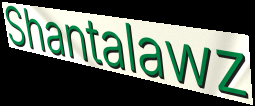
Shantalawz